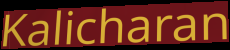
Kalicharan